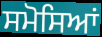
ਸਮੋਸਿਆਂ